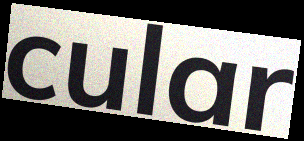
cular